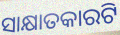
ସାକ୍ଷାତକାରଟି